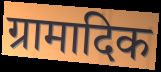
ग्रामादिक